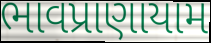
ભાવપ્રાણાયામ